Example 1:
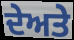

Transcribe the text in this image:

ਦੇਅਤੇ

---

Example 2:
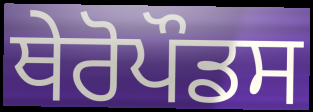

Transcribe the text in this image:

ਥੇਰੋਪੌਡਸ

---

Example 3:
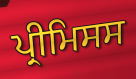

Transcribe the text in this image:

ਪ੍ਰੀਮਿਸਸ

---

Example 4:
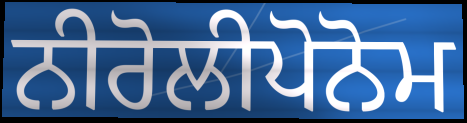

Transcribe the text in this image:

ਨੀਰੋਲੀਪੋਨੋਮ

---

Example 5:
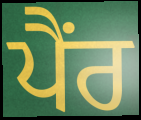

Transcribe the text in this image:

ਪੈਂਰ